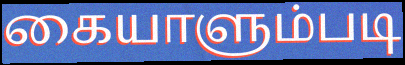
கையாளும்படி